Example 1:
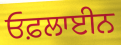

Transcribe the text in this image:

ਓਫ਼ਲਾਈਨ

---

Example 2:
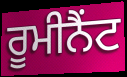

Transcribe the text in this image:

ਰੂਮੀਨੈਂਟ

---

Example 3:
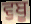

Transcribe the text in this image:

ਵੁਬੂ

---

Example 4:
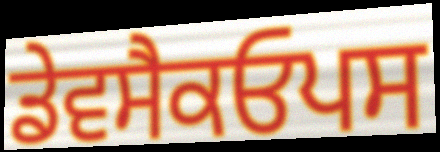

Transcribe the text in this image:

ਡੇਵਸੈਕਓਪਸ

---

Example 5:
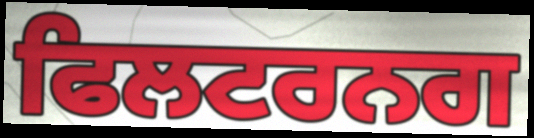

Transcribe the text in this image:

ਫਿਲਟਰਨਗ